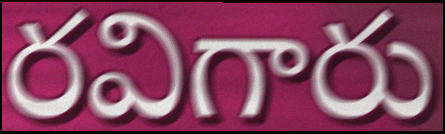
రవిగారు